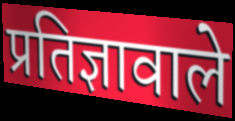
प्रतिज्ञावाले